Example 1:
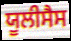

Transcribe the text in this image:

ਯੂਲੀਸੈਸ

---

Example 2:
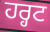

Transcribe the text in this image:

ਹਰ੍ਹਟ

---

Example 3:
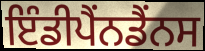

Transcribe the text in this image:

ਇੰਡੀਪੈਂਨਡੈਂਨਸ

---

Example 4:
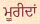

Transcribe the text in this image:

ਮੂਰੀਦਾਂ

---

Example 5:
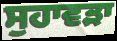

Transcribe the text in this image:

ਸੁਹਾਵੜਾ